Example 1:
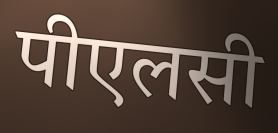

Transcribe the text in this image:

पीएलसी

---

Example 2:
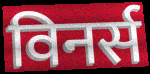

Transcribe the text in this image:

विनर्स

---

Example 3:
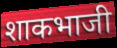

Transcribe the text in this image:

शाकभाजी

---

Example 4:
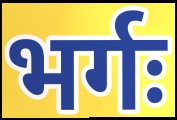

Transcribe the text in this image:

भर्गः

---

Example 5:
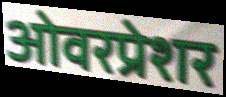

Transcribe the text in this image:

ओवरप्रेशर